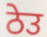
ठेउ